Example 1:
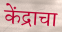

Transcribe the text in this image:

केंद्राचा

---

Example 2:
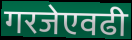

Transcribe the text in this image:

गरजेएवढी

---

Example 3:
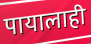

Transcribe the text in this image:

पायालाही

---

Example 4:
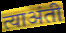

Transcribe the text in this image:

त्याअंती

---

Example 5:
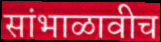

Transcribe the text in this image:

सांभाळावीच